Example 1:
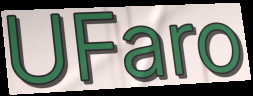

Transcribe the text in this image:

UFaro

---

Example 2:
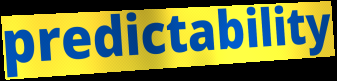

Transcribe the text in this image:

predictability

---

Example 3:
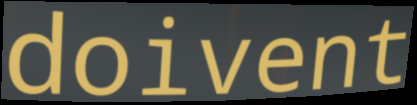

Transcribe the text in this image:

doivent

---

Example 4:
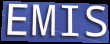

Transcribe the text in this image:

EMIS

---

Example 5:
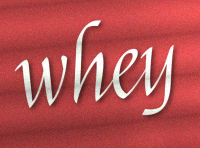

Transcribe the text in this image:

whey